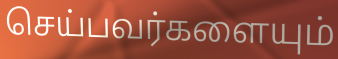
செய்பவர்களையும்